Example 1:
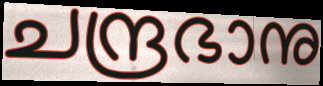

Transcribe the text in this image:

ചന്ദ്രഭാനു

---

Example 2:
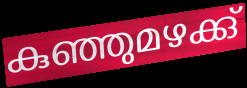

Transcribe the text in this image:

കുഞ്ഞുമഴക്കു്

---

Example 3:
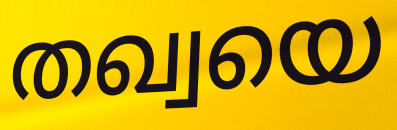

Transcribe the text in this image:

തഖ്വയെ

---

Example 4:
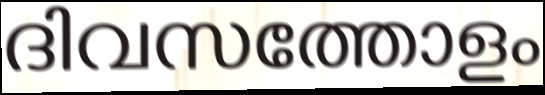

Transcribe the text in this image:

ദിവസത്തോളം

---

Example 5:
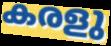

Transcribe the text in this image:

കരളു